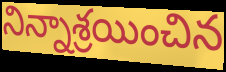
నిన్నాశ్రయించిన